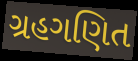
ગ્રહગણિત